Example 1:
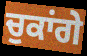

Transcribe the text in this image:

ਚੁਕਾਂਗੇ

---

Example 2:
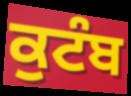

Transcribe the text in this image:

ਕੁਟੰਬ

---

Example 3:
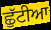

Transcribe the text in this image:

ਛੁੱਟੀਆ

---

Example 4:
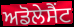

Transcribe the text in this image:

ਅਡੋਲੇਸੈਂਟ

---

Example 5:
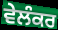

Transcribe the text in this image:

ਵੇਲੰਕਰ